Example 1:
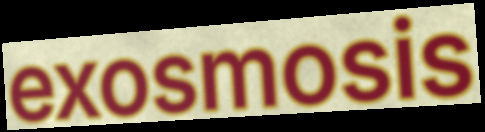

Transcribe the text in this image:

exosmosis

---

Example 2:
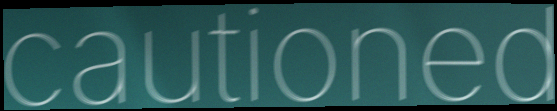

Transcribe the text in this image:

cautioned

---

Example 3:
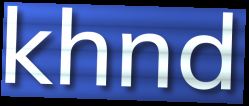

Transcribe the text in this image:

khnd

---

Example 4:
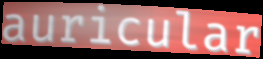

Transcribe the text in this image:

auricular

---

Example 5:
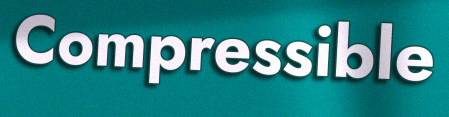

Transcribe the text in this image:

Compressible